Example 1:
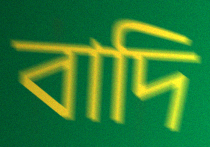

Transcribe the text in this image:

বাদি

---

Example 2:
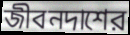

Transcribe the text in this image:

জীবনদাশের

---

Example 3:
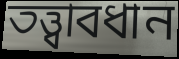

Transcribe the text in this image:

তত্ত্বাবধান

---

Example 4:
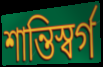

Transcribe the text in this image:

শান্তিস্বর্গ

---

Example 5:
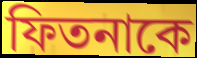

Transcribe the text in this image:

ফিতনাকে